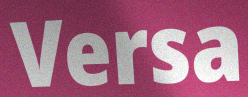
Versa